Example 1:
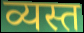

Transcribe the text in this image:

व्यस्त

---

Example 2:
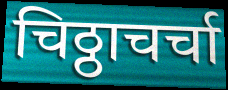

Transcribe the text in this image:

चिठ्ठाचर्चा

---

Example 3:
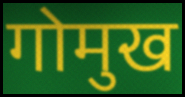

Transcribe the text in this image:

गोमुख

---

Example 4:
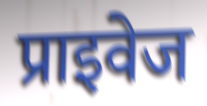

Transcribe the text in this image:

प्राइवेज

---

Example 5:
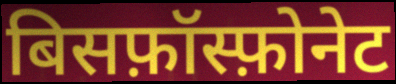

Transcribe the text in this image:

बिसफ़ॉस्फ़ोनेट